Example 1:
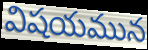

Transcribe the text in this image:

విషయమున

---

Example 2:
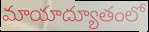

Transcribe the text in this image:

మాయాద్యూతంలో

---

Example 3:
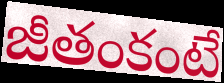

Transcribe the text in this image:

జీతంకంటే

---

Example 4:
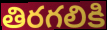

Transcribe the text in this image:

తిరగలికి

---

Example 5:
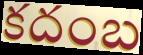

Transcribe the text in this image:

కదంబ